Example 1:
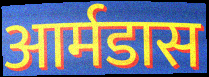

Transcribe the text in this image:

आर्मडास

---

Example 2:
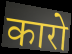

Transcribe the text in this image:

कारो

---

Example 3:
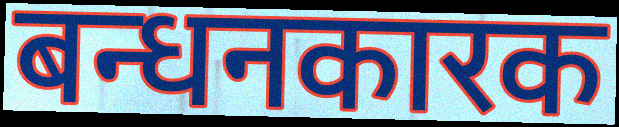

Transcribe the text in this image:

बन्धनकारक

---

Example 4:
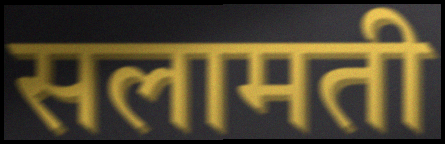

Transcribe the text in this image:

सलामती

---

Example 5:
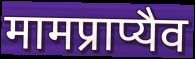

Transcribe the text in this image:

मामप्राप्यैव